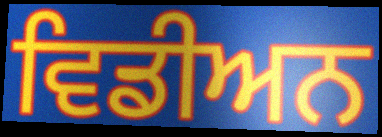
ਵਿਡੀਅਨ